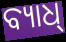
ବ୍ୟାଧ୍